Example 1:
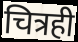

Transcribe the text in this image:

चित्रही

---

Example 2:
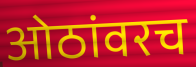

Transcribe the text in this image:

ओठांवरच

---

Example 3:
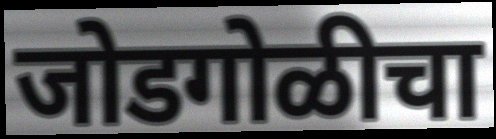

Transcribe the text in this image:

जोडगोळीचा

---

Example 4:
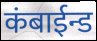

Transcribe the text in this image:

कंबाईन्ड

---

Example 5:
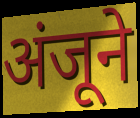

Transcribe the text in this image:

अंजूने